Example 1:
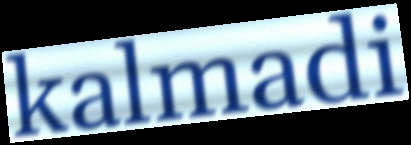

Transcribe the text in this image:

kalmadi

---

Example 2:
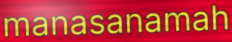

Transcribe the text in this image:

manasanamah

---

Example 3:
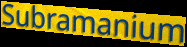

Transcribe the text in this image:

Subramanium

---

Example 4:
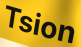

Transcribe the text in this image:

Tsion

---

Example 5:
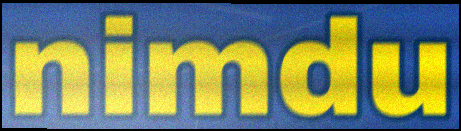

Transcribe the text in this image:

nimdu